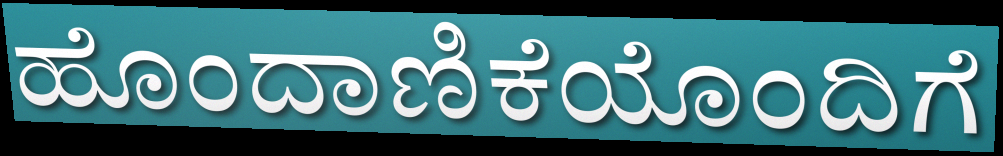
ಹೊಂದಾಣಿಕೆಯೊಂದಿಗೆ